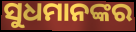
ସୁଧମାନଙ୍କର